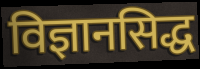
विज्ञानसिद्ध